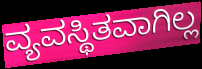
ವ್ಯವಸ್ಥಿತವಾಗಿಲ್ಲ